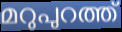
മറുപുറത്ത്